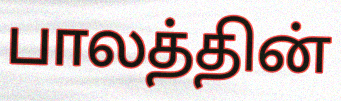
பாலத்தின்